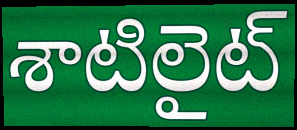
శాటిలైట్